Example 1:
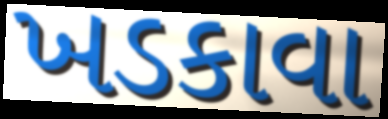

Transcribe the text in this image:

ખડકાવા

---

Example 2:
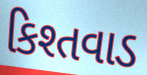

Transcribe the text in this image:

કિશ્તવાડ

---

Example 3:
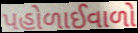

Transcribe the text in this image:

પહોળાઈવાળો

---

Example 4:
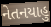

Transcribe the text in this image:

નેતનયાહુ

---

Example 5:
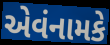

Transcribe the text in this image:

એવંનામકે